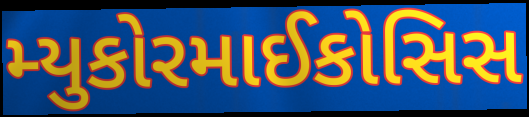
મ્યુકોરમાઈકોસિસ